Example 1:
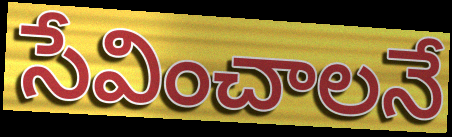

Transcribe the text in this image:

సేవించాలనే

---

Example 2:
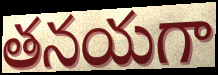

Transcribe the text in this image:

తనయగా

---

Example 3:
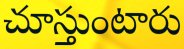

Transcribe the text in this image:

చూస్తుంటారు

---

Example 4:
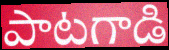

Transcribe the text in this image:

పాటగాడి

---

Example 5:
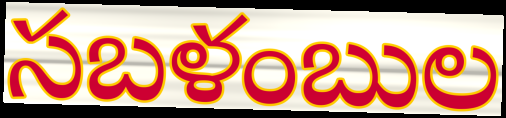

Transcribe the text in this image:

సబళంబుల